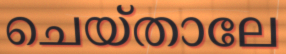
ചെയ്താലേ